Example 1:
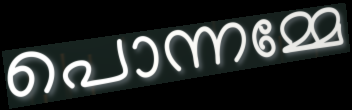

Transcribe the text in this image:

പൊന്നമ്മേ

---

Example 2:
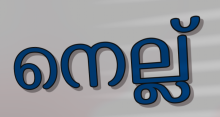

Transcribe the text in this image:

നെല്ല്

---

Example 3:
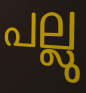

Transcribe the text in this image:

പല്ലു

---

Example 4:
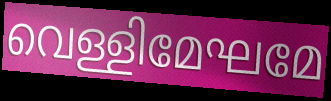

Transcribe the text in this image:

വെള്ളിമേഘമേ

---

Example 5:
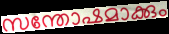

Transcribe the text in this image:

സന്തോഷമാക്കും